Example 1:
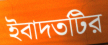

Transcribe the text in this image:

ইবাদতটির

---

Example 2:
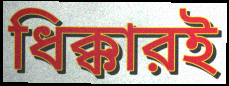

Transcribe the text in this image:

ধিক্কারই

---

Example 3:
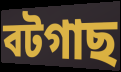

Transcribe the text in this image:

বটগাছ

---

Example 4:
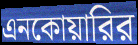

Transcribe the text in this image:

এনকোয়ারির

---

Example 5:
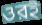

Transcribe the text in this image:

ওরই